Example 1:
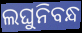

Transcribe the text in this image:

ଲଘୁନିବନ୍ଧ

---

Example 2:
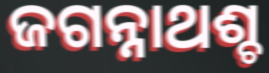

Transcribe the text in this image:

ଜଗନ୍ନାଥଶ୍ଚ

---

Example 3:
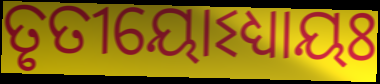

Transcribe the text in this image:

ତୃତୀୟୋଽଧ୍ୟାୟଃ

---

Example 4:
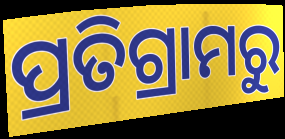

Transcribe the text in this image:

ପ୍ରତିଗ୍ରାମରୁ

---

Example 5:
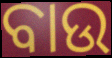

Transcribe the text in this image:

ବାଉ